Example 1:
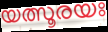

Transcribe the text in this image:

യത്സൂരയഃ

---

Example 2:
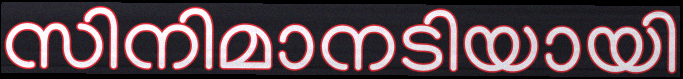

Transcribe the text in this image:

സിനിമാനടിയായി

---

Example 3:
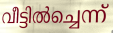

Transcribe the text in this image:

വീട്ടിൽച്ചെന്ന്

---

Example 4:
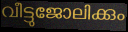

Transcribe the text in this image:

വീട്ടുജോലിക്കും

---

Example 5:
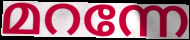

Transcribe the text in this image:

മറന്നേ